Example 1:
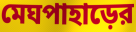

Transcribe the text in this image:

মেঘপাহাড়ের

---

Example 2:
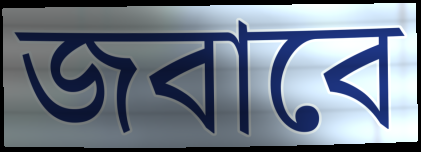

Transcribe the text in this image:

জবাবে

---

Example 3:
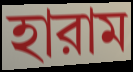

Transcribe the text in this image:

হারাম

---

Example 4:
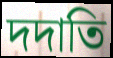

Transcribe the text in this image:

দদাতি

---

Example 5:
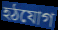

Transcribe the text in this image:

হঠযোগ